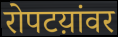
रोपटय़ांवर